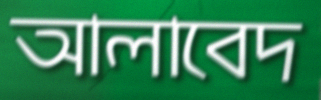
আলাবেদ